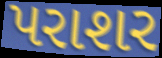
પરાશર